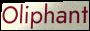
Oliphant